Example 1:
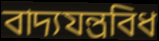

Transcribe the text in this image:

বাদ্যযন্ত্ৰবিধ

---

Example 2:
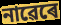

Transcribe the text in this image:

নাৱেৰে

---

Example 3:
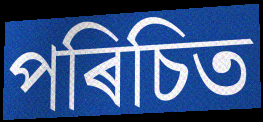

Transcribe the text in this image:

পৰিচিত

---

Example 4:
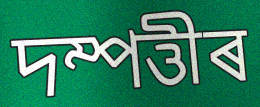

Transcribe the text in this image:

দম্পত্তীৰ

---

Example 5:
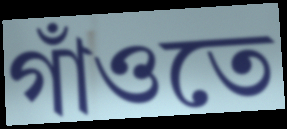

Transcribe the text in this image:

গাঁওতে